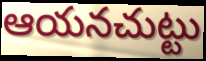
ఆయనచుట్టు